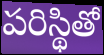
పరిస్థితో